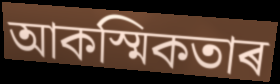
আকস্মিকতাৰ